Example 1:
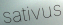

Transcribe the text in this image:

sativus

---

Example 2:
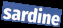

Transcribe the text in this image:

sardine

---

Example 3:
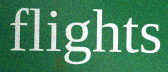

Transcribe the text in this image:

flights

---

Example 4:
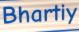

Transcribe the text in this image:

Bhartiy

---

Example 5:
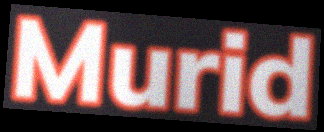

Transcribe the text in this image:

Murid